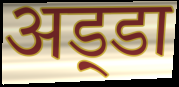
अड्‍डा